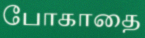
போகாதை